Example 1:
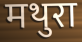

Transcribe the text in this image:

मथुरा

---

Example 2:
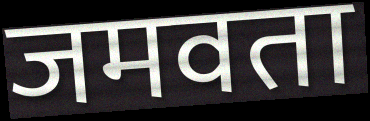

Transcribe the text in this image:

जमवता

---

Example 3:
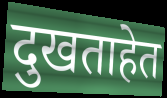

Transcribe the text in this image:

दुखताहेत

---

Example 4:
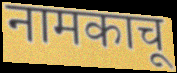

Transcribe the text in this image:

नामकाचू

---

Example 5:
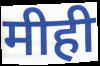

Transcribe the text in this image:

मीही